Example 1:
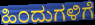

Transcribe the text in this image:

ಹಿಂದುಗಳಿಗೆ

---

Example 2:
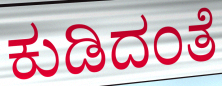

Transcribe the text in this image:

ಕುಡಿದಂತೆ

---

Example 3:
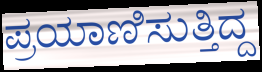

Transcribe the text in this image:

ಪ್ರಯಾಣಿಸುತ್ತಿದ್ದ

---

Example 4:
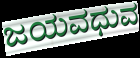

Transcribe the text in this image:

ಜಯವಧುವ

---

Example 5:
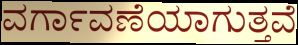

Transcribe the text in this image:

ವರ್ಗಾವಣೆಯಾಗುತ್ತವೆ